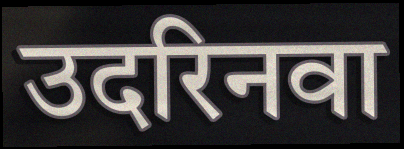
उदरिनवा